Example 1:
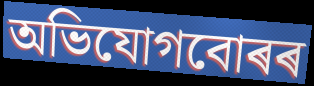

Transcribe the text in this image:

অভিযোগবোৰৰ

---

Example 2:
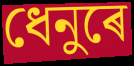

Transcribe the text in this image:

ধেনুৰে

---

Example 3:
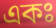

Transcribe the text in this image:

একঃ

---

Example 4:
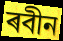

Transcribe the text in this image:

ৰবীন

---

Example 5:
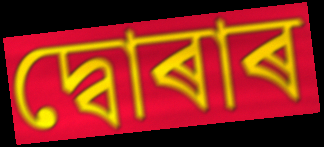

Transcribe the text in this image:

দ্বোৰাৰ